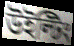
উইল্টিং